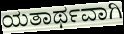
ಯತಾರ್ಥವಾಗಿ